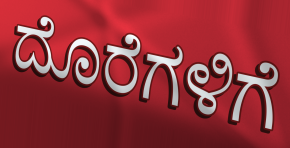
ದೊರೆಗಳಿಗೆ